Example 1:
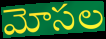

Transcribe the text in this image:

మోసల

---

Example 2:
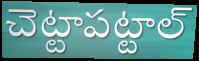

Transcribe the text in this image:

చెట్టాపట్టాల్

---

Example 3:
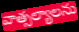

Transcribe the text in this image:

వాత్సల్యాలను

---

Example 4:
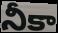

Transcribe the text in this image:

నీకా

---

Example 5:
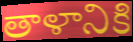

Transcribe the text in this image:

తాళానికి